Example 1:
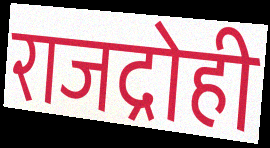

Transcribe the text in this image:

राजद्रोही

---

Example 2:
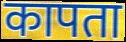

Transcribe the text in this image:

कापता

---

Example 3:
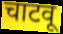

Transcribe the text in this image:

चाटवू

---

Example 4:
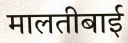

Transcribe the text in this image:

मालतीबाई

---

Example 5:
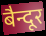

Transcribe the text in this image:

बैन्दूर